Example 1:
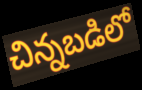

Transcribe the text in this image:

చిన్నబడిలో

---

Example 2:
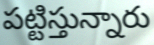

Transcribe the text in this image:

పట్టిస్తున్నారు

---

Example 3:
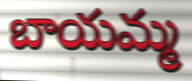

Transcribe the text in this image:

బాయమ్మ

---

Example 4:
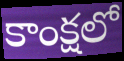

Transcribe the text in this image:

కాంక్షలో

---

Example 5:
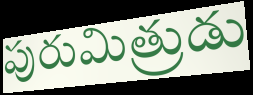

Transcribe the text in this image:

పురుమిత్రుడు